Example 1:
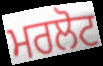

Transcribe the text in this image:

ਮਰਲੋਟ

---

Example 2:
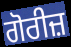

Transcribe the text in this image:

ਗੋਰੀਜ਼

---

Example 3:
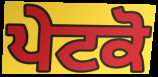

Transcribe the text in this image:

ਪੇਟਕੋ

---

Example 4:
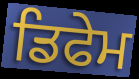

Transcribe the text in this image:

ਡਿਫੇਮ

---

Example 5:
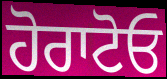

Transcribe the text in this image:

ਹੋਰਾਟੋਓ